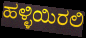
ಹಳ್ಳಿಯಿರಲಿ